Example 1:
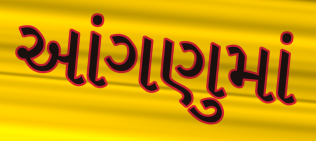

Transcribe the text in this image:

આંગણુમાં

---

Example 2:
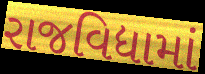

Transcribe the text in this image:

રાજવિદ્યામાં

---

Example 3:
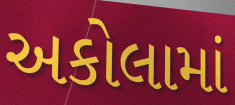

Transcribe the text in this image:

અકોલામાં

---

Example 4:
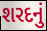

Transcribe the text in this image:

શરદનું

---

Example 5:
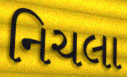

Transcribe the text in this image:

નિચલા